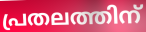
പ്രതലത്തിന്